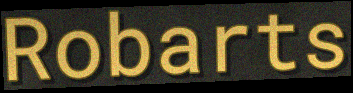
Robarts